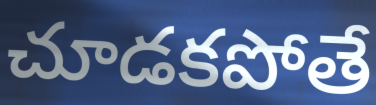
చూడకపోతే